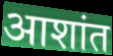
आशांत